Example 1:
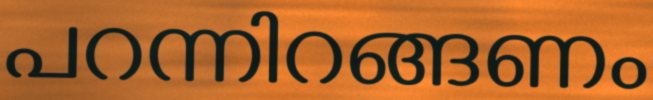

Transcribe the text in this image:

പറന്നിറങ്ങണം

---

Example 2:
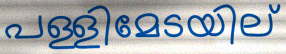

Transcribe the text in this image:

പള്ളിമേടയില്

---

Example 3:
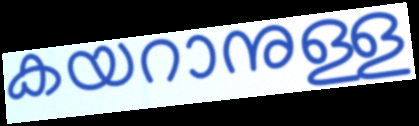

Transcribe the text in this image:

കയറാനുള്ള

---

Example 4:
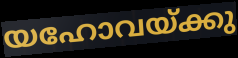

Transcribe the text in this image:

യഹോവയ്ക്കു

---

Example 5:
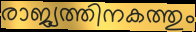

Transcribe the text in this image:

രാജ്യത്തിനകത്തും